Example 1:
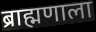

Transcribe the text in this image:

ब्राह्मणाला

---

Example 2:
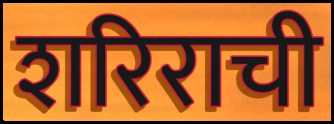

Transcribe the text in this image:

शरिराची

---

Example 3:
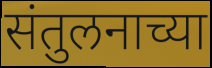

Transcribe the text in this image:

संतुलनाच्या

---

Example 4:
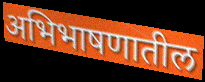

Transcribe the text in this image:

अभिभाषणातील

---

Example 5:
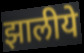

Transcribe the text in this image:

झालीये